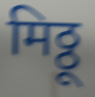
मिठ्ठू